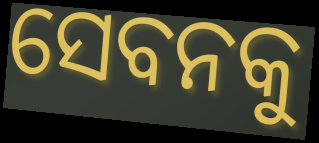
ସେବନକୁ